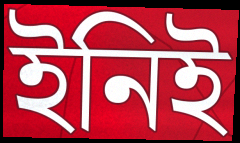
ইনিই